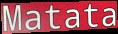
Matata